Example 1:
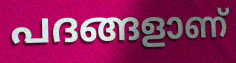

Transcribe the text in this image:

പദങ്ങളാണ്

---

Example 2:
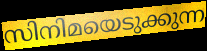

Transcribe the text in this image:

സിനിമയെടുക്കുന്ന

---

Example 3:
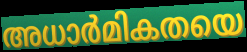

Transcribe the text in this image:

അധാർമികതയെ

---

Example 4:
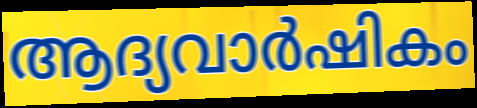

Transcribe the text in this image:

ആദ്യവാർഷികം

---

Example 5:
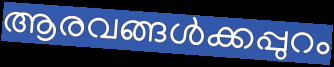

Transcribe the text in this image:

ആരവങ്ങൾക്കപ്പുറം